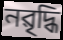
নৱৃদ্ধি